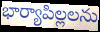
భార్యాపిల్లలను